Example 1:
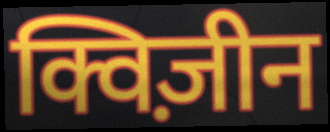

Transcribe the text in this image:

क्विज़ीन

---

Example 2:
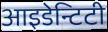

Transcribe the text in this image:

आइडेन्टिटी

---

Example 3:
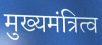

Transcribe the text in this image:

मुख्यमंत्रित्व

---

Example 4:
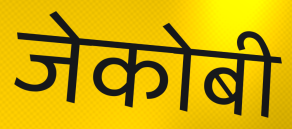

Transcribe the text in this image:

जेकोबी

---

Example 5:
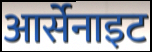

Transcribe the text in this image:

आर्सेनाइट